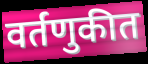
वर्तणुकीत